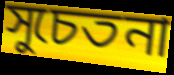
সুচেতনা